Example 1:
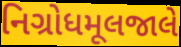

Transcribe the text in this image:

નિગ્રોધમૂલજાલે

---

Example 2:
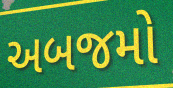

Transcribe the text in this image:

અબજમો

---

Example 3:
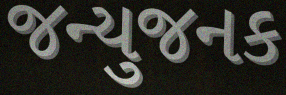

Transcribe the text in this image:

જન્યુજનક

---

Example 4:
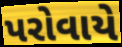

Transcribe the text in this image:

પરોવાયે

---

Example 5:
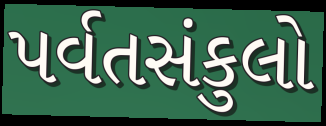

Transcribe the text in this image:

પર્વતસંકુલો